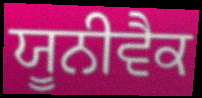
ਯੂਨੀਵੈਕ